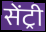
सेंट्री